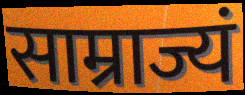
साम्राज्यं